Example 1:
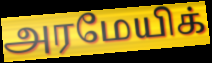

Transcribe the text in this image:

அரமேயிக்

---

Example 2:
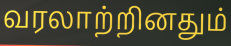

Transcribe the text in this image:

வரலாற்றினதும்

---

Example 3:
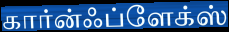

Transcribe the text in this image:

கார்ன்ஃப்ளேக்ஸ்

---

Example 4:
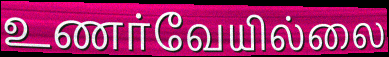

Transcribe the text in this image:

உணர்வேயில்லை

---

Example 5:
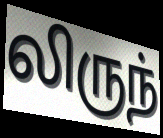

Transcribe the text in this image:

லிருந்